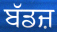
ਬੱਡਜ਼